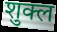
शुक्‍ल